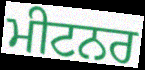
ਮੀਟਨਰ